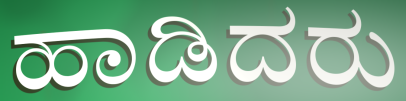
ಹಾಡಿದರು